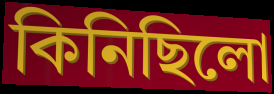
কিনিছিলো